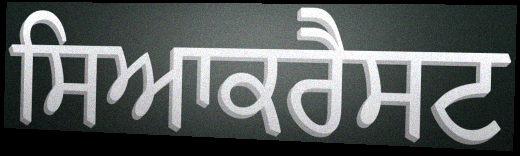
ਸਿਆਕਰੈਸਟ